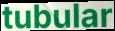
tubular